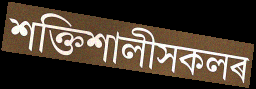
শক্তিশালীসকলৰ